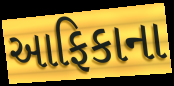
આફિકાના